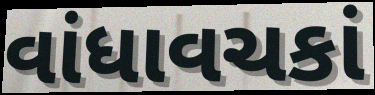
વાંધાવચકાં